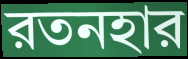
রতনহার